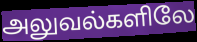
அலுவல்களிலே